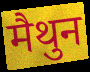
मैथुन